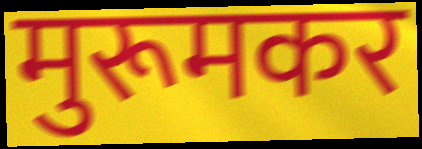
मुरूमकर